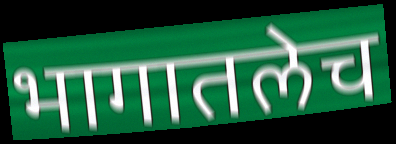
भागातलेच